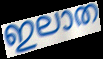
ഇലാത